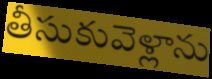
తీసుకువెళ్లాను